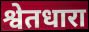
श्वेतधारा